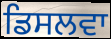
ਡਿਸਲਵਾ